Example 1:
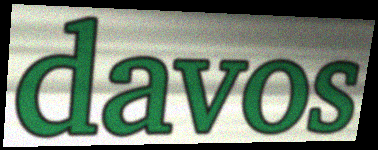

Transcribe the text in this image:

davos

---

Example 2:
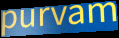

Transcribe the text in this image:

purvam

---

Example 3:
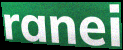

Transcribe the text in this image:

ranei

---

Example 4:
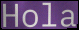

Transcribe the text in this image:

Hola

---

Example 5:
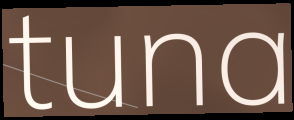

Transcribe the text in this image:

tuna